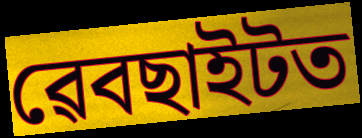
ৱেবছাইটত